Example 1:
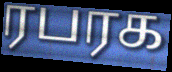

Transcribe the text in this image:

ரபரக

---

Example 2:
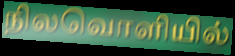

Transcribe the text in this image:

நிலவொளியில்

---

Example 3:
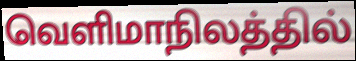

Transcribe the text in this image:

வெளிமாநிலத்தில்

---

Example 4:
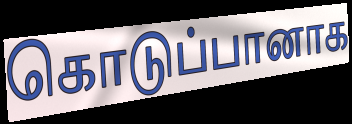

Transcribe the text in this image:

கொடுப்பானாக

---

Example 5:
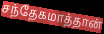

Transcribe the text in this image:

சந்தேகமாத்தான்